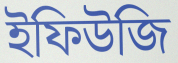
ইফিউজি